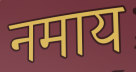
नमाय